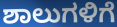
ಶಾಲುಗಳಿಗೆ